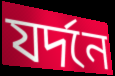
যর্দনে